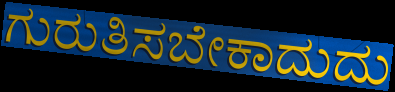
ಗುರುತಿಸಬೇಕಾದುದು